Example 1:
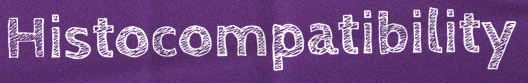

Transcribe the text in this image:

Histocompatibility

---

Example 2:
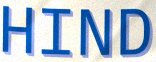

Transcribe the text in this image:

HIND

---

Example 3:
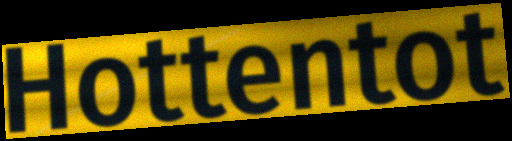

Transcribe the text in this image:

Hottentot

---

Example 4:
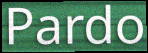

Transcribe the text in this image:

Pardo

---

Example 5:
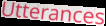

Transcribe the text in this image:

Utterances